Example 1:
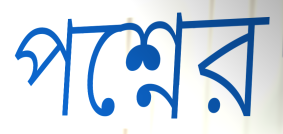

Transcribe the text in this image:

পশ্নের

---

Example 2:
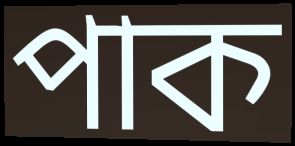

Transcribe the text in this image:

পাক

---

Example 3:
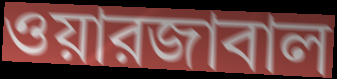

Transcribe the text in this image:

ওয়ারজাবাল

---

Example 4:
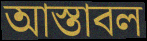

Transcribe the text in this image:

আস্তাবল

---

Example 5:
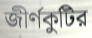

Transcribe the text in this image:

জীর্ণকুটির